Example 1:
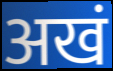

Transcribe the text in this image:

अखं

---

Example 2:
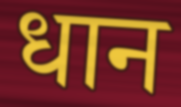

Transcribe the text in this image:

धान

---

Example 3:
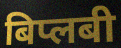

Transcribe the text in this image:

बिप्लबी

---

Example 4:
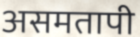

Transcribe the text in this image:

असमतापी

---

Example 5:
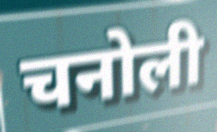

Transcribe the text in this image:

चनोली